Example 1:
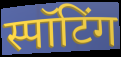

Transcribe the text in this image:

स्पॉटिंग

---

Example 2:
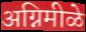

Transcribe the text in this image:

अग्निमीळे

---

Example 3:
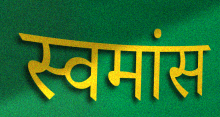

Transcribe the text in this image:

स्वमांस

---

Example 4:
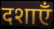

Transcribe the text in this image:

दशाएँ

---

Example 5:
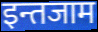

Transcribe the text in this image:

इन्तजाम